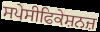
ਸਪੇਸੀਫਿਕੇਸ਼ਨਜ਼